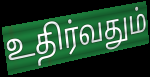
உதிர்வதும்